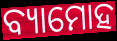
ବ୍ୟାମୋହ